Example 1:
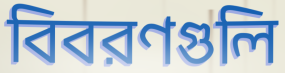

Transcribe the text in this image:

বিবরণগুলি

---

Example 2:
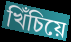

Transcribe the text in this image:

খিঁচিয়ে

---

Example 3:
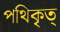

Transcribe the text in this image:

পথিকৃত্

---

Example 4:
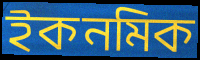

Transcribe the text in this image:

ইকনমিক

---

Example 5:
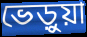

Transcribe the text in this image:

ভেড়ুয়া